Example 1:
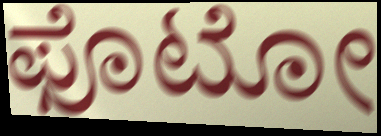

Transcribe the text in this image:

ಫೊಟೋ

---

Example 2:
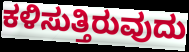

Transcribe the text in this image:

ಕಳಿಸುತ್ತಿರುವುದು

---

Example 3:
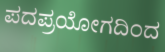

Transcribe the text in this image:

ಪದಪ್ರಯೋಗದಿಂದ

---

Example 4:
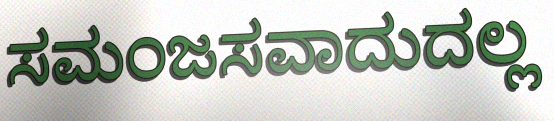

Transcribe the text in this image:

ಸಮಂಜಸವಾದುದಲ್ಲ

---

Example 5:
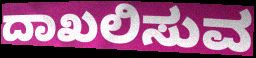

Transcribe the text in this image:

ದಾಖಲಿಸುವ